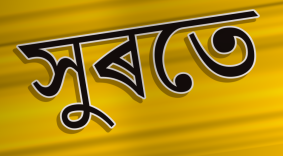
সুৰতে